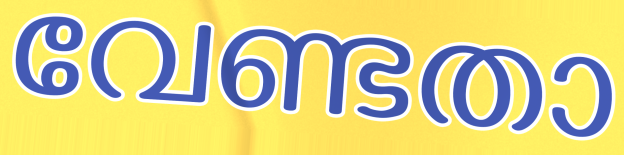
വേണ്ടതാ